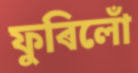
ফুৰিলোঁ